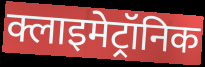
क्लाइमेट्रॉनिक